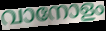
വാനോളം